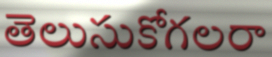
తెలుసుకోగలరా